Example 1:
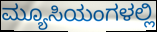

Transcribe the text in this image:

ಮ್ಯೂಸಿಯಂಗಳಲ್ಲಿ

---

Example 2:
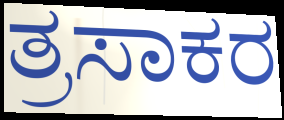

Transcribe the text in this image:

ತ್ರಸಾಕರ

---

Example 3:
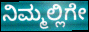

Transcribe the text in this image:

ನಿಮ್ಮಲ್ಲಿಗೇ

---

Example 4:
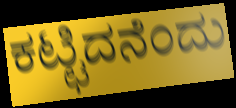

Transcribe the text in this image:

ಕಟ್ಟಿದನೆಂದು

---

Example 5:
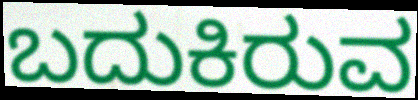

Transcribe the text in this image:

ಬದುಕಿರುವ